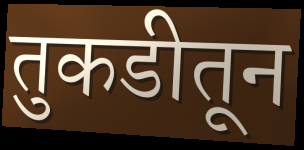
तुकडीतून